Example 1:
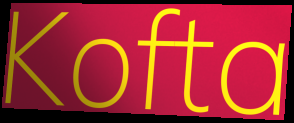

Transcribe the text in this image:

Kofta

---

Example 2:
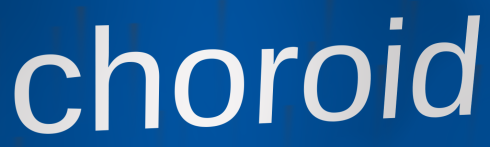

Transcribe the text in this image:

choroid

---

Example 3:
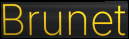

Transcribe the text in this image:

Brunet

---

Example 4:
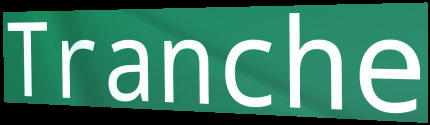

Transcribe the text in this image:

Tranche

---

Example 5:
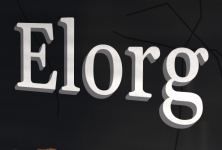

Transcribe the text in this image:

Elorg